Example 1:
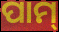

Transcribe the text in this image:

ପାମ୍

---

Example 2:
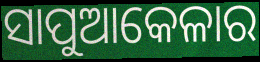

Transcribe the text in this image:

ସାପୁଆକେଳାର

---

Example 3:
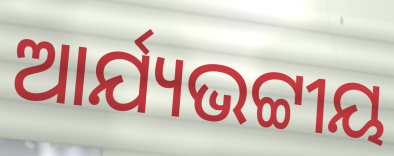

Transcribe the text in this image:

ଆର୍ଯ୍ୟଭଟ୍ଟୀୟ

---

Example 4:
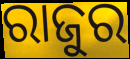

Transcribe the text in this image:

ରାଜୁର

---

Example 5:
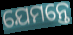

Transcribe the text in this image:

ଯେମନ୍ତେ